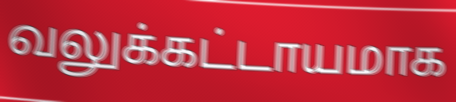
வலுக்கட்டாயமாக